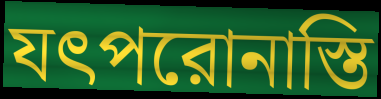
যৎপরোনাস্তি